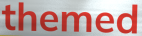
themed